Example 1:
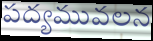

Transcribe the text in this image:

పద్యమువలన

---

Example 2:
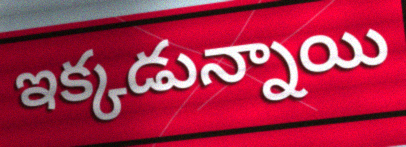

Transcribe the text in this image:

ఇక్కడున్నాయి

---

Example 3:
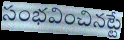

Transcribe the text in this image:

సంభవించినట్టే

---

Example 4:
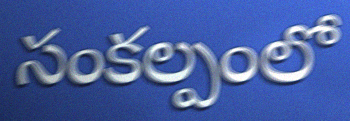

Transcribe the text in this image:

సంకల్పంలో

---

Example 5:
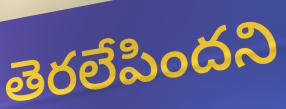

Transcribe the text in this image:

తెరలేపిందని